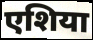
एशिया